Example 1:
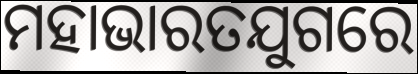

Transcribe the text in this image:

ମହାଭାରତଯୁଗରେ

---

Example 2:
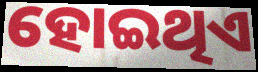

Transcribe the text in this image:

ହୋଇଥିଏ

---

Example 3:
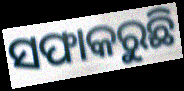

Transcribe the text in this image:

ସଫାକରୁଛି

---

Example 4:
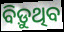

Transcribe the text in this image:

ବିଡ଼ୁଥିବ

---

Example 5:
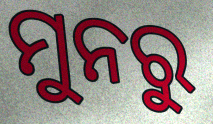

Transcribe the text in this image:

ମୁନରୁ